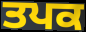
ਤਪਕ